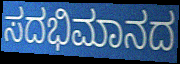
ಸದಭಿಮಾನದ